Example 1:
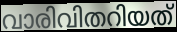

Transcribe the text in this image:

വാരിവിതറിയത്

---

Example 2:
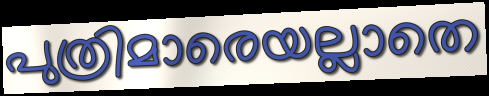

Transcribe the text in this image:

പുത്രിമാരെയല്ലാതെ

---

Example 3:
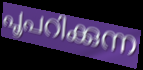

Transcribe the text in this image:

പൂപറിക്കുന്ന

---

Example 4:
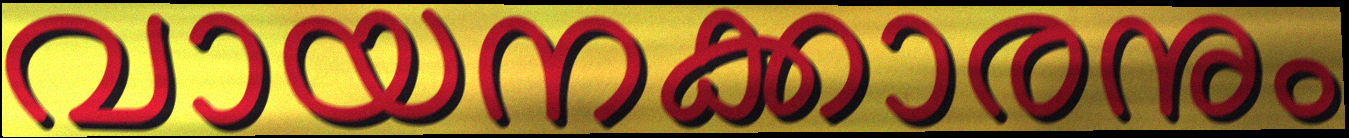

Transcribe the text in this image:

വായനക്കാരനും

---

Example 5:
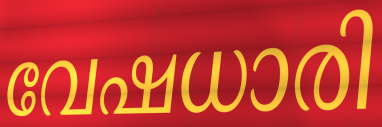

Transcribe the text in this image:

വേഷധാരി